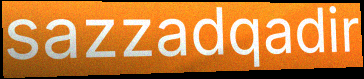
sazzadqadir